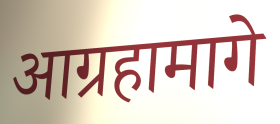
आग्रहामागे